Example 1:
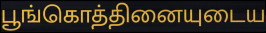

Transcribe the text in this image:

பூங்கொத்தினையுடைய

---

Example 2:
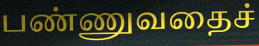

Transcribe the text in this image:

பண்ணுவதைச்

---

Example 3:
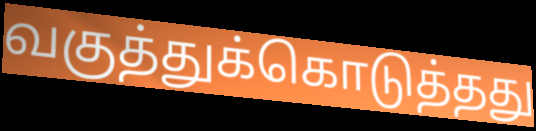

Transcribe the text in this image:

வகுத்துக்கொடுத்தது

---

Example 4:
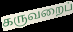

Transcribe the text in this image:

கருவறைப்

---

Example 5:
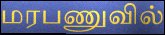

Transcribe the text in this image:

மரபணுவில்